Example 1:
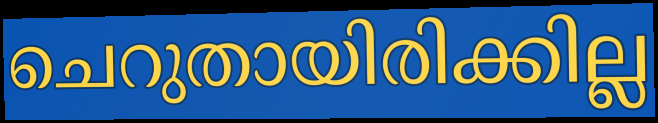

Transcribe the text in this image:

ചെറുതായിരിക്കില്ല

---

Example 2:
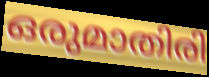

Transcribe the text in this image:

ഒരുമാതിരി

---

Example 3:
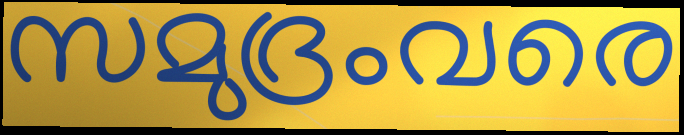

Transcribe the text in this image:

സമുദ്രംവരെ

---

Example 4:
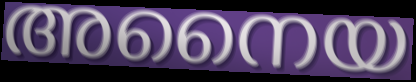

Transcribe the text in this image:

അനൈയ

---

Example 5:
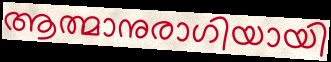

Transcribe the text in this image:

ആത്മാനുരാഗിയായി